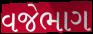
વજેભાગ